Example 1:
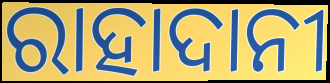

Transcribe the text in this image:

ରାହାଦାନୀ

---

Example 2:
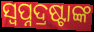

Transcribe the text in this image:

ସ୍ୱପ୍ନଦ୍ରଷ୍ଟାଙ୍କ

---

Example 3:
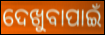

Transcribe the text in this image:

ଦେଖୁବାପାଇଁ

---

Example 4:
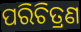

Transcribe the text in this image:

ପରିଚିତ୍ରଣ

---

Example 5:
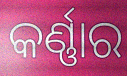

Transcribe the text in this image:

କର୍ଣ୍ଣାର